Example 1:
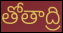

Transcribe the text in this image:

తోతాద్రి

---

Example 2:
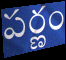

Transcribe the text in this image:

పర్ణం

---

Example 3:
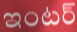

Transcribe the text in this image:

ఇంటర్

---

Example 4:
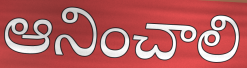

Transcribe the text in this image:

ఆనించాలి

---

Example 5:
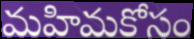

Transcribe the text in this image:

మహిమకోసం